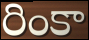
రింకా